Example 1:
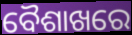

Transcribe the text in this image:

ବୈଶାଖରେ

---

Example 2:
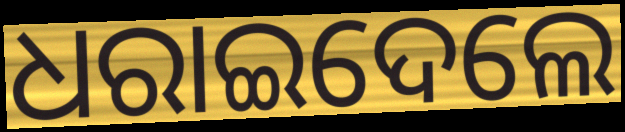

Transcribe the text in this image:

ଧରାଇଦେଲେ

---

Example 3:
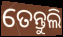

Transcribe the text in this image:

ତେନ୍ତୁଲି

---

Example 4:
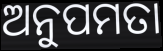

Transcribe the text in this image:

ଅନୁପମତା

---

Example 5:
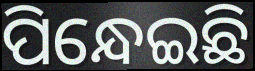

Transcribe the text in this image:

ପିନ୍ଧେଇଛି